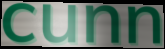
cunn